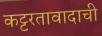
कट्टरतावादाची